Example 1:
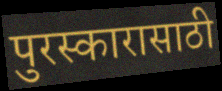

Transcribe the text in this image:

पुरस्कारासाठी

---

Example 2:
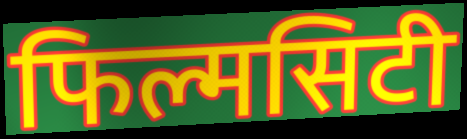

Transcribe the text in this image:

फिल्मसिटी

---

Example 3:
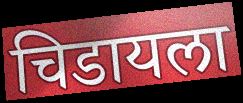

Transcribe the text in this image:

चिडायला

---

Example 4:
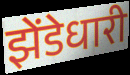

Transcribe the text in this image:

झेंडेधारी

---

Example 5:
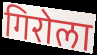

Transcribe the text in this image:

गिरोला